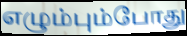
எழும்பும்போது